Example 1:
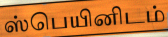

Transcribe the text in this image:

ஸ்பெயினிடம்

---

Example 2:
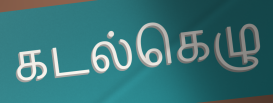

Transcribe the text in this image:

கடல்கெழு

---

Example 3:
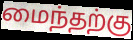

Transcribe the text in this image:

மைந்தற்கு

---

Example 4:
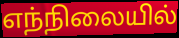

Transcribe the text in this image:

எந்நிலையில்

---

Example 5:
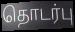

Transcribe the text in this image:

தொடர்பு